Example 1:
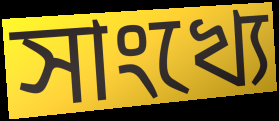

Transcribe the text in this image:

সাংখ্যে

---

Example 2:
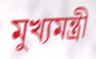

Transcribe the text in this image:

মুখ্য়মন্ত্রী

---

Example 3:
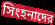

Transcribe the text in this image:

সিংহনাদের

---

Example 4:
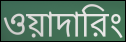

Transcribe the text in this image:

ওয়াদারিং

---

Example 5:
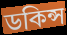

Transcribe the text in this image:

ডকিন্স